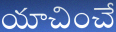
యాచించే